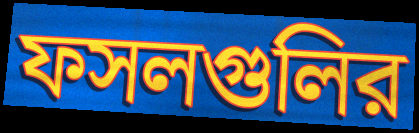
ফসলগুলির